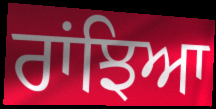
ਰਾਂਝਿਆ